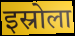
इस्रोला